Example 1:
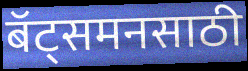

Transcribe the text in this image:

बॅट्समनसाठी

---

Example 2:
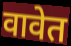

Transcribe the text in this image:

वावेत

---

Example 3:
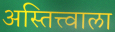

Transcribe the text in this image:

अस्तित्त्वाला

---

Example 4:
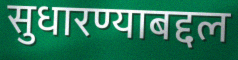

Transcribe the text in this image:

सुधारण्याबद्दल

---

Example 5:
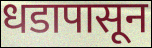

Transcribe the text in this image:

धडापासून